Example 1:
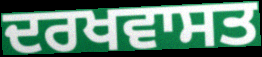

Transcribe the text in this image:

ਦਰਖਵਾਸਤ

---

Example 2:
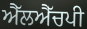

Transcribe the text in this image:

ਐੱਲਐੱਚਪੀ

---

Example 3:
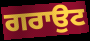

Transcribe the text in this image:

ਗਰਾਉਟ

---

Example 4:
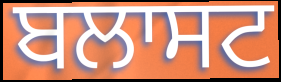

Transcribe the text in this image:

ਬਲਾਸਟ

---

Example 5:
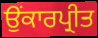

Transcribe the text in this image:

ਉਂਕਾਰਪ੍ਰੀਤ